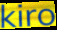
kiro